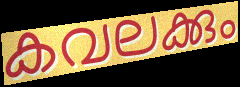
കവലക്കും